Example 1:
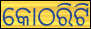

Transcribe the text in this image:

କୋଠରିଟି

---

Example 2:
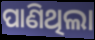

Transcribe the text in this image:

ପାଣିଥିଲା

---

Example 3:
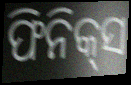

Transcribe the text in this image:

ଫିନିକ୍‍ସ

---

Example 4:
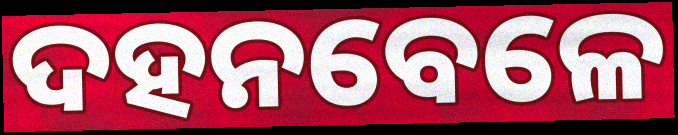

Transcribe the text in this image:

ଦହନବେଳେ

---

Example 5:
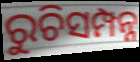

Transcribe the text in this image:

ରୁଚିସମ୍ପନ୍ନ